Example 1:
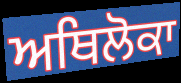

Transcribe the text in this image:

ਅਥਿਲੋਕਾ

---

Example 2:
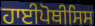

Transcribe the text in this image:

ਹਾਈਪੋਥੀਸਿਸ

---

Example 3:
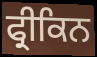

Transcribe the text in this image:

ਫ੍ਰੀਕਿਨ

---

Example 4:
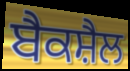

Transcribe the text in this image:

ਬੈਕਸ਼ੈਲ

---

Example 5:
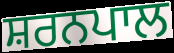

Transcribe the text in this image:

ਸ਼ਰਨਪਾਲ